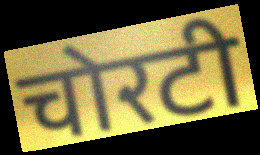
चोरटी